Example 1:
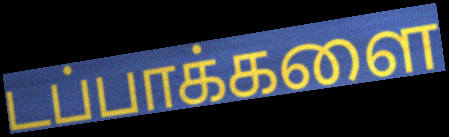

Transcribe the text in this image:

டப்பாக்களை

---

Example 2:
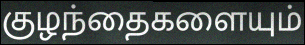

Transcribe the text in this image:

குழந்தைகளையும்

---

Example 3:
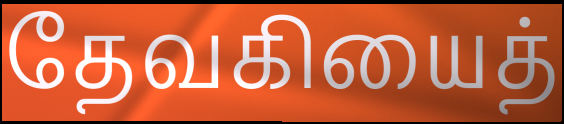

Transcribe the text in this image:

தேவகியைத்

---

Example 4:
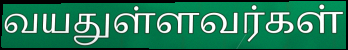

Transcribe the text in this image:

வயதுள்ளவர்கள்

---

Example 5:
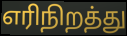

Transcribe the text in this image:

எரிநிறத்து